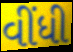
વીંધી